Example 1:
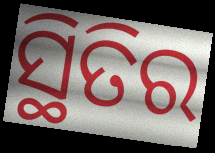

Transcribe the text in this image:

ସ୍ଥିତିର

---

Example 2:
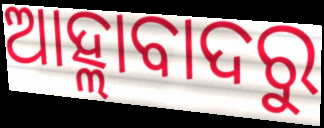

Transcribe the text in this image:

ଆହ୍ଲାବାଦରୁ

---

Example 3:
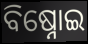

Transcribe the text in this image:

ବିଷ୍ନୋଇ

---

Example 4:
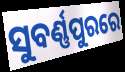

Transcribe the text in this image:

ସୁବର୍ଣ୍ଣପୁରରେ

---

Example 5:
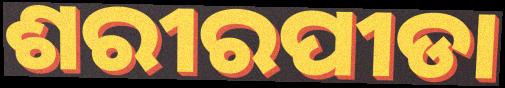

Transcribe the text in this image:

ଶରୀରପୀଡା